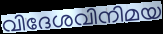
വിദേശവിനിമയ